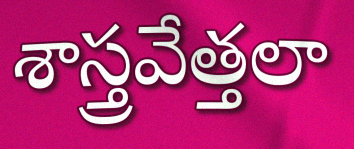
శాస్త్రవేత్తలా